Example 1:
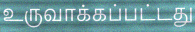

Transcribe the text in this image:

உருவாக்கப்பட்டது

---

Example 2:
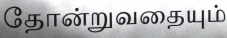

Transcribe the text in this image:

தோன்றுவதையும்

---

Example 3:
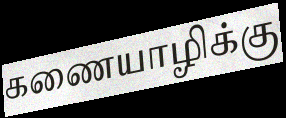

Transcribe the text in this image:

கணையாழிக்கு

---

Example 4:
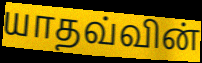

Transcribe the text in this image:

யாதவ்வின்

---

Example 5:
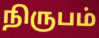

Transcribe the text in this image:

நிருபம்